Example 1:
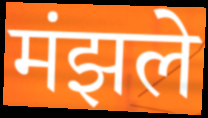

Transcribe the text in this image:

मंझले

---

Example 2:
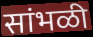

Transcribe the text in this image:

सांभळी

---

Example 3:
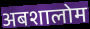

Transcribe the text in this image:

अबशालोम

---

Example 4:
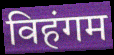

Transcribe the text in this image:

विहंगम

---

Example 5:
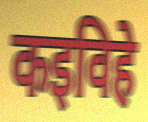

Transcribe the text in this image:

कइविहे